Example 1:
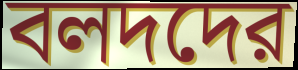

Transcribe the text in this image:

বলদদের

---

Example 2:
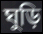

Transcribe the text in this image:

ঘুড়ি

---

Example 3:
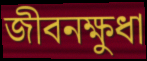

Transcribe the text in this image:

জীবনক্ষুধা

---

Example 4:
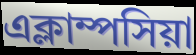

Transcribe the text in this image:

এক্লাম্পসিয়া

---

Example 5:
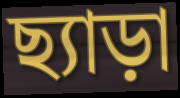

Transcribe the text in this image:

ছ্যাড়া